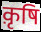
क़ृषि